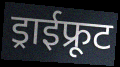
ड्राईफ्रूट